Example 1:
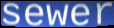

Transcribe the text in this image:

sewer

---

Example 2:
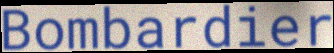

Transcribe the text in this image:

Bombardier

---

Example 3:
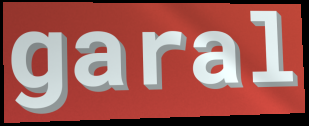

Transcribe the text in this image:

garal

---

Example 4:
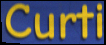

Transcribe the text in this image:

Curti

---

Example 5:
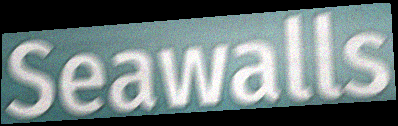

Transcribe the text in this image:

Seawalls